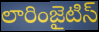
లారింజైటిస్